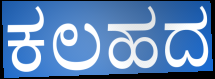
ಕಲಹದ